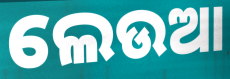
ଲେଉଆ